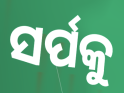
ସର୍ପକୁ